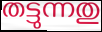
തട്ടുന്നതു